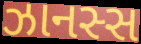
ઝાનસ્સ